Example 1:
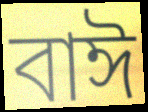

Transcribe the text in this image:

বাঈ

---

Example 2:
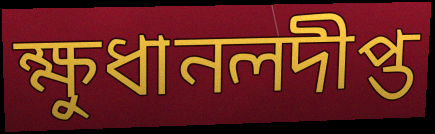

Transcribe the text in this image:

ক্ষুধানলদীপ্ত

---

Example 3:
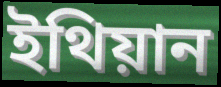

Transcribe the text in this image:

ইথিয়ান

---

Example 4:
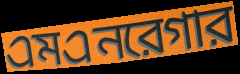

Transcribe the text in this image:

এমএনরেগার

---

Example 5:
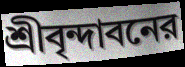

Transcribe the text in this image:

শ্রীবৃন্দাবনের